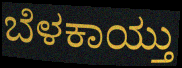
ಬೆಳಕಾಯ್ತು